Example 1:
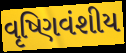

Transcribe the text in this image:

વૃષ્ણિવંશીય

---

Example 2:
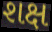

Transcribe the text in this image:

શક્ષ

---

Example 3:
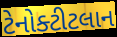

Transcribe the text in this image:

ટેનોક્ટીટલાન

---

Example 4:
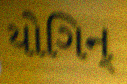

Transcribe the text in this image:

યોગિન્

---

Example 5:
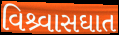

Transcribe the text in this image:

વિશ્ર્વાસઘાત